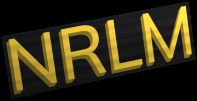
NRLM